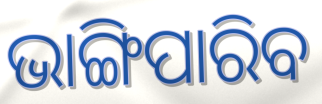
ଭାଙ୍ଗିପାରିବ